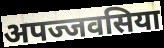
अपज्जवसिया